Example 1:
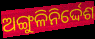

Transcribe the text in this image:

ଅଙ୍ଗୁଳିନିର୍ଦ୍ଦେଶ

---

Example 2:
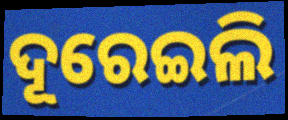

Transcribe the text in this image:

ଦୂରେଇଲି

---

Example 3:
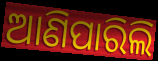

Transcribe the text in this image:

ଆଣିପାରିଲି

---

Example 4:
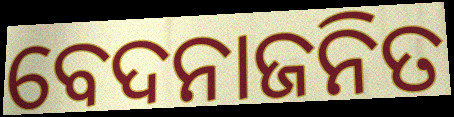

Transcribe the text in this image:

ବେଦନାଜନିତ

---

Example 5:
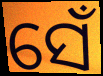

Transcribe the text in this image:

ସେଁ